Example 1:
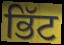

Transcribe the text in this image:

ਭਿੱਟ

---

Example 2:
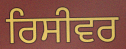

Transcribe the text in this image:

ਰਿਸੀਵਰ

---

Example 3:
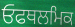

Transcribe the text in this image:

ਓਫਥਲਮਿਕ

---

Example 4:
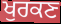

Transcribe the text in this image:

ਖੁਰਕਣ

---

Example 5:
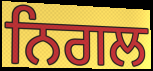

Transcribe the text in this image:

ਨਿਗਲ